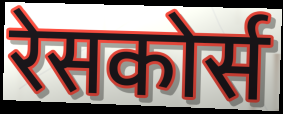
रेसकोर्स